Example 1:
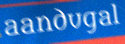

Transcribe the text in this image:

aandugal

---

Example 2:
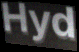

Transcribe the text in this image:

Hyd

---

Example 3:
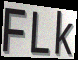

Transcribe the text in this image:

FLk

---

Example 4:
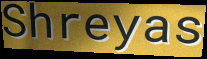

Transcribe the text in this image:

Shreyas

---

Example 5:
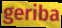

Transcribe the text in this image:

geriba